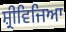
ਸ਼੍ਰੀਵਿਜਿਆ